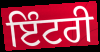
ਇੰਟਰੀ